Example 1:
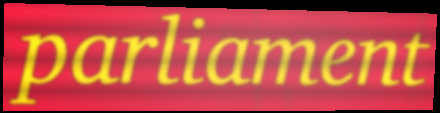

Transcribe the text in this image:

parliament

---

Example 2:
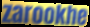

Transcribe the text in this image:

zarookhe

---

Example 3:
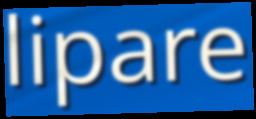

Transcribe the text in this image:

lipare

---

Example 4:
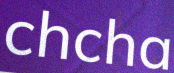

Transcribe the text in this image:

chcha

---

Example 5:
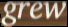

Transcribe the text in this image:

grew